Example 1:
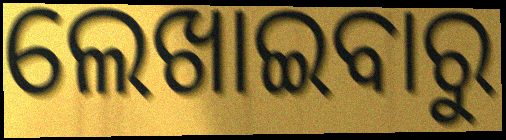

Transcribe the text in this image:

ଲେଖାଇବାରୁ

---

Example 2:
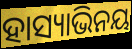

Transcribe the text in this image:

ହାସ୍ୟାଭିନୟ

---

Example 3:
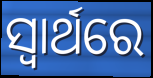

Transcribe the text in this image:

ସ୍ବାର୍ଥରେ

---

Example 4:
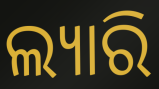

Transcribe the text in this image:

ଲ୍ୟାରି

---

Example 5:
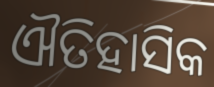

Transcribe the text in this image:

ଐତିହାସିକ